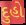
દુહો